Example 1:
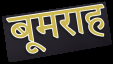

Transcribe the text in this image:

बूमराह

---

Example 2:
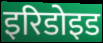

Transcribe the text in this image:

इरिडोइड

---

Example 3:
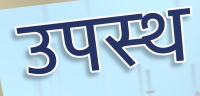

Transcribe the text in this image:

उपस्थ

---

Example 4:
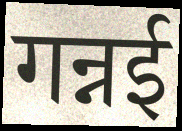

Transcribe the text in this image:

गन्नई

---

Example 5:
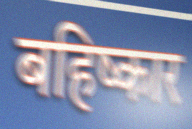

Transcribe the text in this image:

बहिष्‍कार